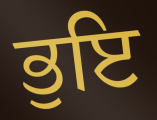
ਭੁਇ